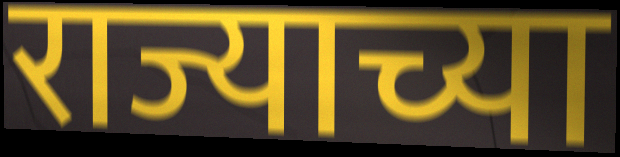
राज्याच्या